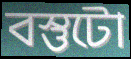
বস্তুটো